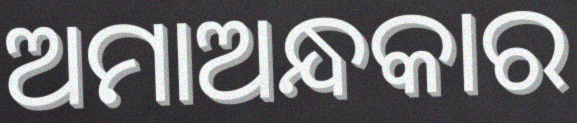
ଅମାଅନ୍ଧକାର